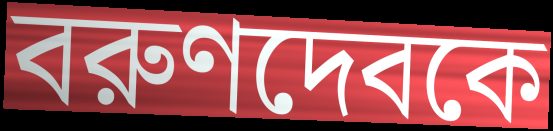
বরুণদেবকে